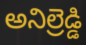
అనిల్రెడ్డి